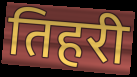
तिहरी